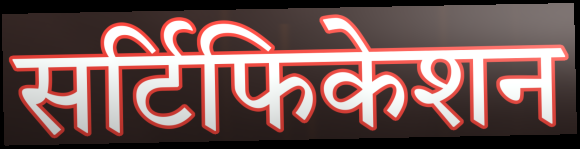
सर्टिफिकेशन